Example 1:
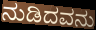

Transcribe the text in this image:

ನುಡಿದವನು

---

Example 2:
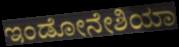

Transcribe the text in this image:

ಇಂಡೋನೇಶಿಯಾ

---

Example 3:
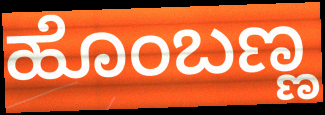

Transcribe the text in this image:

ಹೊಂಬಣ್ಣ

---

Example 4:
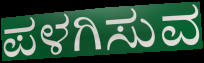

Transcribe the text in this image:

ಪಳಗಿಸುವ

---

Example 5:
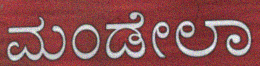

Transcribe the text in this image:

ಮಂಡೇಲಾ